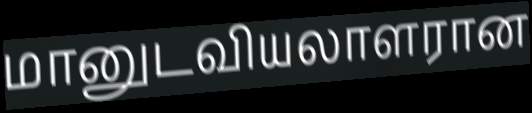
மானுடவியலாளரான